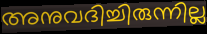
അനുവദിച്ചിരുന്നില്ല